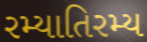
રમ્યાતિરમ્ય